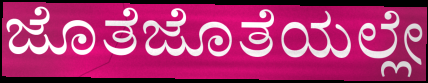
ಜೊತೆಜೊತೆಯಲ್ಲೇ